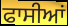
ਫਾਸੀਆਂ